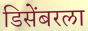
डिसेंबरला